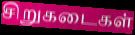
சிறுகடைகள்